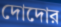
দোদোর